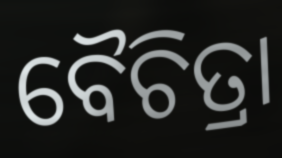
ବୈଚିତ୍ରା